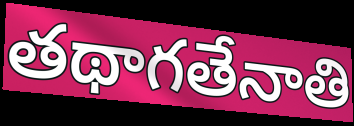
తథాగతేనాతి